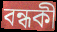
বন্ধকী